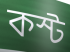
কস্ট